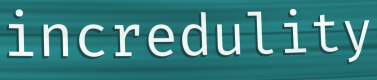
incredulity